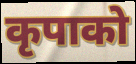
कृपाको